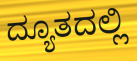
ದ್ಯೂತದಲ್ಲಿ